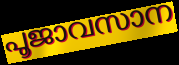
പൂജാവസാന